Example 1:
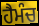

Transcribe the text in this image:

ਹੈਮੰਚ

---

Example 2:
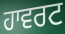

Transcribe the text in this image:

ਹਾਵਰਟ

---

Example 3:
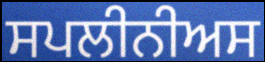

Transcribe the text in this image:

ਸਪਲੀਨੀਅਸ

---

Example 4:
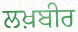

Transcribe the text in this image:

ਲਖ਼ਬੀਰ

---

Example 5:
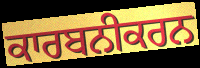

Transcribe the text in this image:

ਕਾਰਬਨੀਕਰਨ